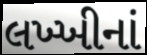
લખ્ખીનાં